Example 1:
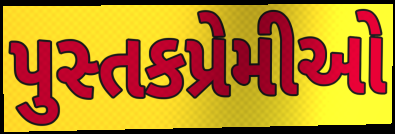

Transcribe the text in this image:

પુસ્તકપ્રેમીઓ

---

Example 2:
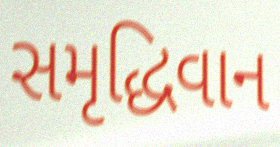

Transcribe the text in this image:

સમૃદ્ધિવાન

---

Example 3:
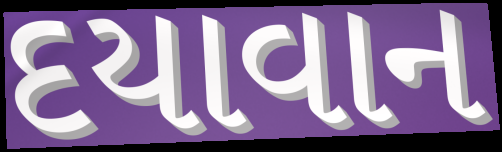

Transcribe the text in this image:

દયાવાન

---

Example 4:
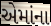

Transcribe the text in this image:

એમાંના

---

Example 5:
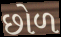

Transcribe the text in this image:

છોળ